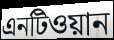
এনটিওয়ান